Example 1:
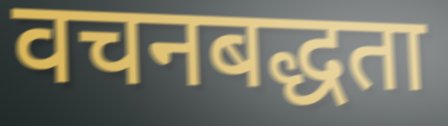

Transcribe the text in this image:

वचनबद्धता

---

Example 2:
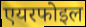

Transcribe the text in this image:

एयरफोइल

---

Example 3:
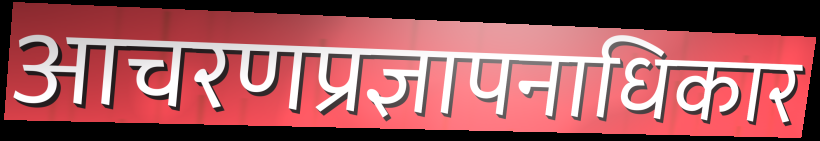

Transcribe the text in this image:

आचरणप्रज्ञापनाधिकार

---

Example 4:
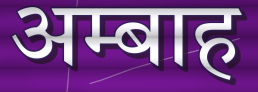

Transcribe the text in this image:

अम्बाह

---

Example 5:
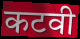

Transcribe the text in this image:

कटवी